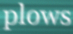
plows